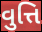
વુત્તિ